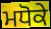
ਮਧੋਕੇ